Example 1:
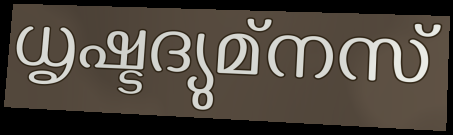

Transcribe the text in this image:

ധൃഷ്ടദ്യുമ്നസ്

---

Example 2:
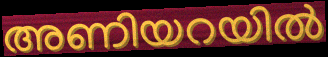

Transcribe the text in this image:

അണിയറയിൽ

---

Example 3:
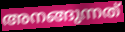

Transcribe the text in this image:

അനങ്ങുന്നത്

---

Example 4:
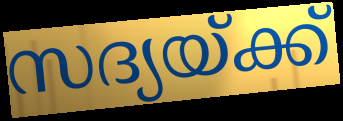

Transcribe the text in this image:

സദ്യയ്ക്ക്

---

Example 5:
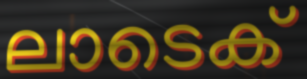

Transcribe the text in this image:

ലാടെക്